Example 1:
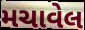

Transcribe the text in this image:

મચાવેલ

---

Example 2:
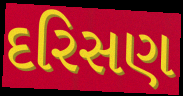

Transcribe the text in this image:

દરિસણ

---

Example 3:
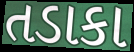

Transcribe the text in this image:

તડાકા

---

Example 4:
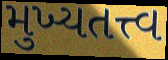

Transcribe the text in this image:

મુખ્યતત્ત્વ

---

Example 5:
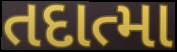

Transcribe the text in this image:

તદાત્મા